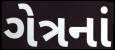
ગેત્રનાં